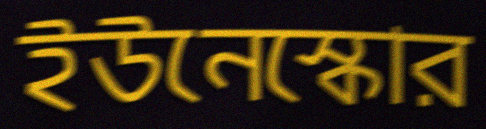
ইউনেস্কোর